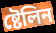
ষ্টেলিন